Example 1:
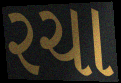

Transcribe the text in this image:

રચા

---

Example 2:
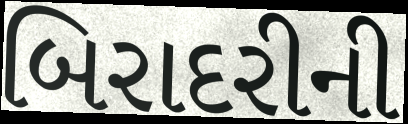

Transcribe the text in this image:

બિરાદરીની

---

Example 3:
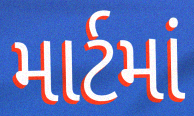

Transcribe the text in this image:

માર્ટમાં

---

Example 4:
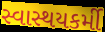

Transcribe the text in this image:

સ્વાસ્થયકર્મી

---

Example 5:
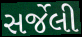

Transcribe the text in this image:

સર્જેલી